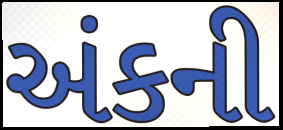
અંકની